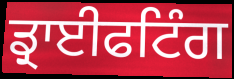
ਡ੍ਰਾਈਫਟਿੰਗ